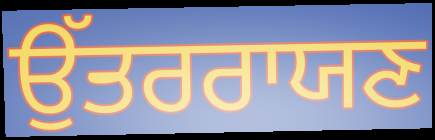
ਉੱਤਰਰਾਯਣ